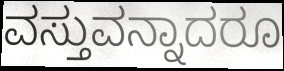
ವಸ್ತುವನ್ನಾದರೂ